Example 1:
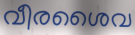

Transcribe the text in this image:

വീരശൈവ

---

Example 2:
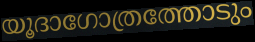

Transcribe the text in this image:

യൂദാഗോത്രത്തോടും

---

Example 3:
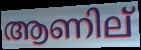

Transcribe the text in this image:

ആണില്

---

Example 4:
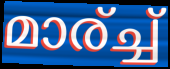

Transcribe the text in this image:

മാര്ച്ച്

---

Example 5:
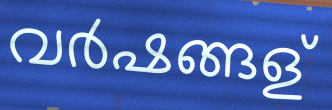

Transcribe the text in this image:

വർഷങ്ങള്